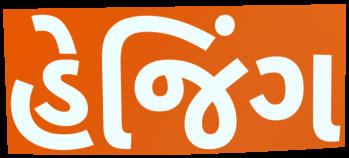
હેજિંગ